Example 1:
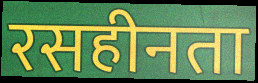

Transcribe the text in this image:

रसहीनता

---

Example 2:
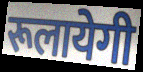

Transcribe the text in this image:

रूलायेगी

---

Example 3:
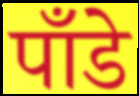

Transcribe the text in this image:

पाँडे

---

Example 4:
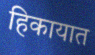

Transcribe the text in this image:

हिकायात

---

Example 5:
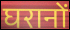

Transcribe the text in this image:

घरानों